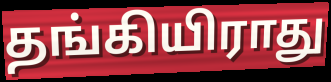
தங்கியிராது